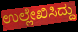
ಉಲ್ಲೇಖಿಸಿದ್ದು